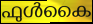
ഫുൾകൈ